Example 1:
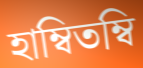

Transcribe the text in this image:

হাম্বিতম্বি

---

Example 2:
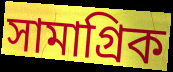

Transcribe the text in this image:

সামাগ্রিক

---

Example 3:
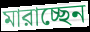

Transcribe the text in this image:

মারাচ্ছেন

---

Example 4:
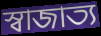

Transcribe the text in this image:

স্বাজাত্য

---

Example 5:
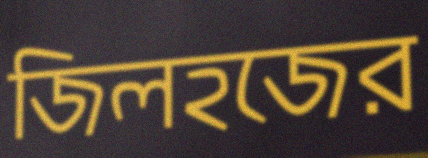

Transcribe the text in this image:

জিলহজের